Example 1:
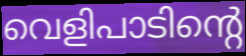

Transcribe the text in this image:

വെളിപാടിന്റെ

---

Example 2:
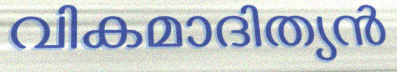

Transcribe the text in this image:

വികമാദിത്യൻ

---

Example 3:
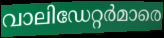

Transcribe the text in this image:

വാലിഡേറ്റർമാരെ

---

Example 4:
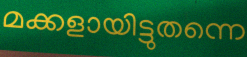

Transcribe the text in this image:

മക്കളായിട്ടുതന്നെ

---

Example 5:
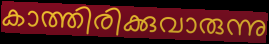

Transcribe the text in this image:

കാത്തിരിക്കുവാരുന്നു